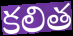
కలిత